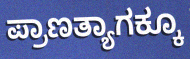
ಪ್ರಾಣತ್ಯಾಗಕ್ಕೂ